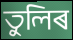
তুলিৰ